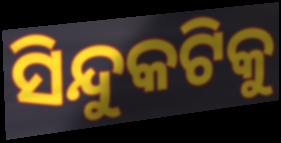
ସିନ୍ଦୁକଟିକୁ